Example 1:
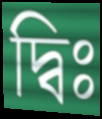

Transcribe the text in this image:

দ্বিঃ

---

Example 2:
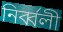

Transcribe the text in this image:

নিৰ্ব্বলী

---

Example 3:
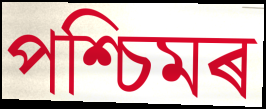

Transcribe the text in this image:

পশ্চিমৰ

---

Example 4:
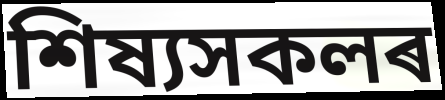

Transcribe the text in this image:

শিষ্যসকলৰ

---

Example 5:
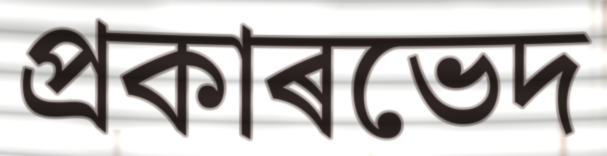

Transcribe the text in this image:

প্ৰকাৰভেদ